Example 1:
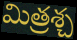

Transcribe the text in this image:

మిత్రశ్చ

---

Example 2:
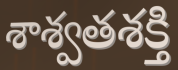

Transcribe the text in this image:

శాశ్వతశక్తి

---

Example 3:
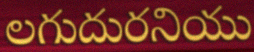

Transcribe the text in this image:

లగుదురనియు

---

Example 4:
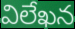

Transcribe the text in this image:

విలేఖన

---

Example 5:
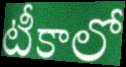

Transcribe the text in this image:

టీకాలో